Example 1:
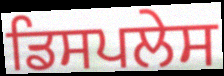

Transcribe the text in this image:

ਡਿਸਪਲੇਸ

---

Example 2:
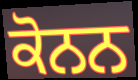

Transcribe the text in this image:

ਕੋਨਨ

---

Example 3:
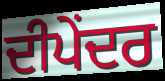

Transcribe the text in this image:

ਦੀਪੇਂਦਰ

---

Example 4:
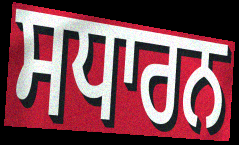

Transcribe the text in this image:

ਸਧਾਰਨ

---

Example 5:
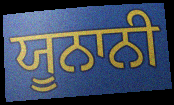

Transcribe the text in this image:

ਯੂਨਾਨੀ